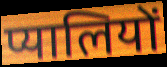
प्यालियों